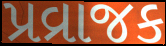
પ્રવ્રાજક